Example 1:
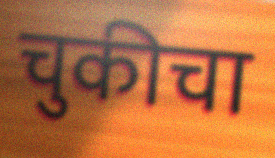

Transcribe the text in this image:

चुकीचा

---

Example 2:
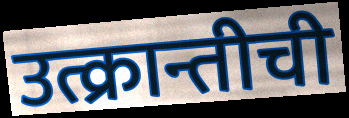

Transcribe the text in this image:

उत्क्रान्तीची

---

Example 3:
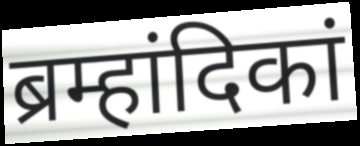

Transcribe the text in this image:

ब्रम्हांदिकां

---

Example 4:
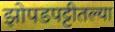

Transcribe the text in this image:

झोपडपट्टीतल्या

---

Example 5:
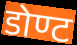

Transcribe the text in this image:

डोण्ट